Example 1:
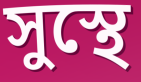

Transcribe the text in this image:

সুস্থে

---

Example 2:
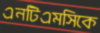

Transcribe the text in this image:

এনটিএমসিকে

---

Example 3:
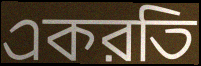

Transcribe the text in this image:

একরতি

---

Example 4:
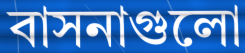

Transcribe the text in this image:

বাসনাগুলো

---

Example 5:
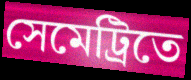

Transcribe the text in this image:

সেমেট্রিতে